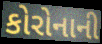
કોરોનાની